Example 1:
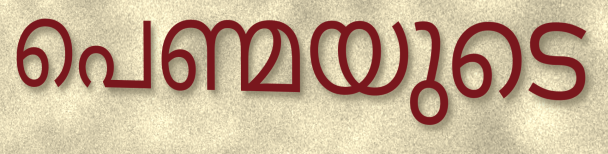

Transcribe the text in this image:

പെണ്മയുടെ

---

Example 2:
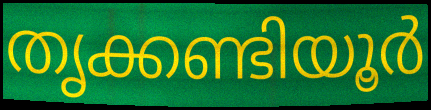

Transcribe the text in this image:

തൃക്കണ്ടിയൂർ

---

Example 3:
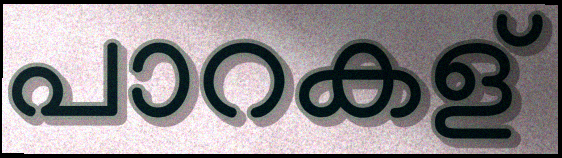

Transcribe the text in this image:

പാറകള്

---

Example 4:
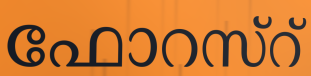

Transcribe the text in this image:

ഫോറസ്റ്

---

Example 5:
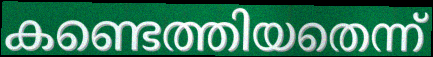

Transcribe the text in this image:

കണ്ടെത്തിയതെന്ന്